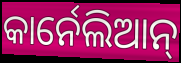
କାର୍ନେଲିଆନ୍